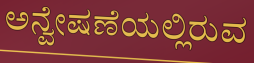
ಅನ್ವೇಷಣೆಯಲ್ಲಿರುವ